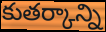
కుతర్కాన్ని